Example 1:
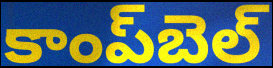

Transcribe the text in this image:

కాంప్‌బెల్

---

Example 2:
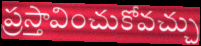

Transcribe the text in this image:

ప్రస్తావించుకోవచ్చు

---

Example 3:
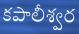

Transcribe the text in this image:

కపాలీశ్వర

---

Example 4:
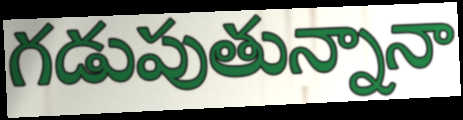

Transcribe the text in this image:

గడుపుతున్నానా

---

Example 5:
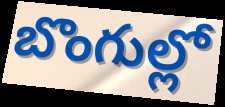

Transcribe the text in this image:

బొంగుల్లో